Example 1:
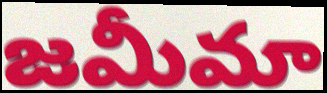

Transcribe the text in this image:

జమీమా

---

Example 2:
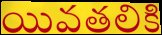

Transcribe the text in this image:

యివతలికి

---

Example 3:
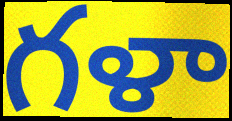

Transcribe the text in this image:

గళా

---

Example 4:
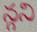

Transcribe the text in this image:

న్గని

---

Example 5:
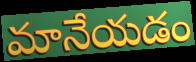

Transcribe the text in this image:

మానేయడం